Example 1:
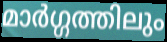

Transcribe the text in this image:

മാർഗ്ഗത്തിലും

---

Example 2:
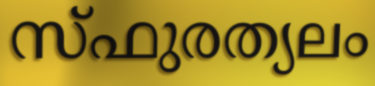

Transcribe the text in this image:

സ്ഫുരത്യലം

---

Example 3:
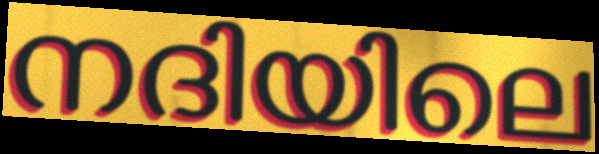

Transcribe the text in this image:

നദിയിലെ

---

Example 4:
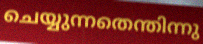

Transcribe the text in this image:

ചെയ്യുന്നതെന്തിന്നു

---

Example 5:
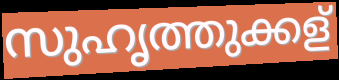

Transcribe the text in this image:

സുഹൃത്തുക്കള്